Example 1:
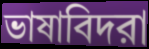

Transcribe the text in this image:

ভাষাবিদরা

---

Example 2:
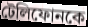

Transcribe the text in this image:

টেলিফোনকে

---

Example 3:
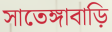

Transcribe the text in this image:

সাতেঙ্গাবাড়ি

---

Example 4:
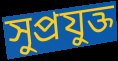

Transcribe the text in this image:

সুপ্রযুক্ত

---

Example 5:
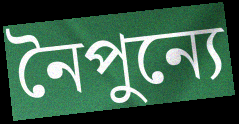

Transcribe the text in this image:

নৈপুন্যে